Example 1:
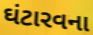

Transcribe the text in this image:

ઘંટારવના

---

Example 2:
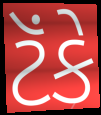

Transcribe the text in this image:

ટૅંકે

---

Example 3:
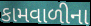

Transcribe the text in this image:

કામવાળીના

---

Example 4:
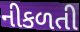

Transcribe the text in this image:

નીકળતી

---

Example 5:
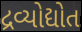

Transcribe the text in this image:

દ્રવ્યોદ્યોત